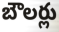
బౌలర్లు